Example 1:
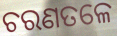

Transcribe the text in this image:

ଚରଣତଳେ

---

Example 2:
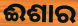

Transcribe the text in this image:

ଈଶାର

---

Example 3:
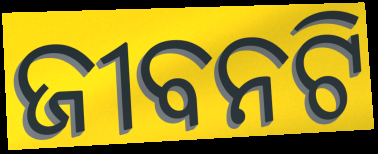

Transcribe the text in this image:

ଜୀବନଟି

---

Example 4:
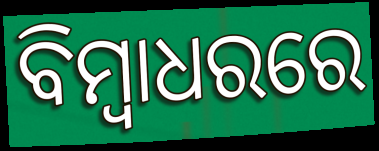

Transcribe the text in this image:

ବିମ୍ୱାଧରରେ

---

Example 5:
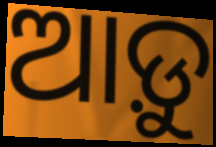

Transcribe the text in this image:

ଆଡ଼ୁ